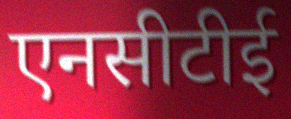
एनसीटीई